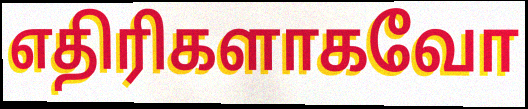
எதிரிகளாகவோ